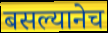
बसल्यानेच